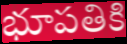
భూపతికి